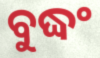
ବୁଦ୍ଧଂ